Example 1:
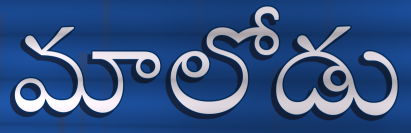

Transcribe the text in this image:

మాలోడు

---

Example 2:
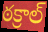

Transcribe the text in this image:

ఠక్రాల్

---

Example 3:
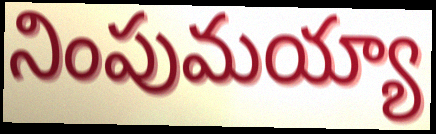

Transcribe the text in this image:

నింపుమయ్యా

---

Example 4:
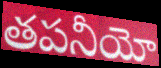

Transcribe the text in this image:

తపనీయో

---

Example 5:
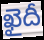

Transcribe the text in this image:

ఖైదీ